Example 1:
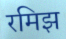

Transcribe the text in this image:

रमिझ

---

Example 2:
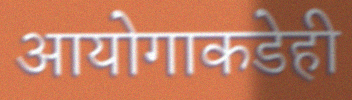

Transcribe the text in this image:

आयोगाकडेही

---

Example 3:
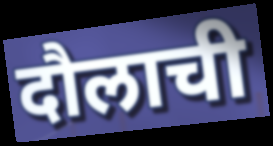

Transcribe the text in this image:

दौलाची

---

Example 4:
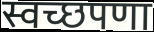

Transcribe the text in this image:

स्वच्छपणा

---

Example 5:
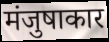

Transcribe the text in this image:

मंजुषाकार